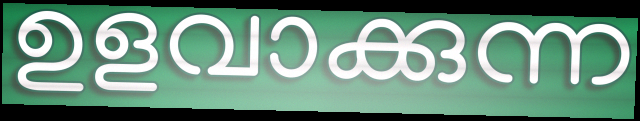
ഉളവാക്കുന്ന